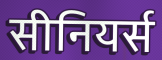
सीनियर्स